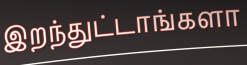
இறந்துட்டாங்களா